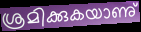
ശ്രമിക്കുകയാണു്